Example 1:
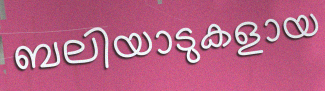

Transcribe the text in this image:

ബലിയാടുകളായ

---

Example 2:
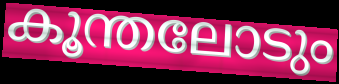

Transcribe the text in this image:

കൂന്തലോടും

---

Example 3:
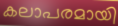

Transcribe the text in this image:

കലാപരമായി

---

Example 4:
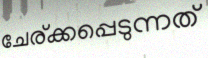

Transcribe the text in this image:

ചേര്ക്കപ്പെടുന്നത്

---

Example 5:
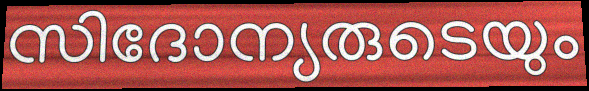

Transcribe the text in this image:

സിദോന്യരുടെയും